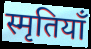
स्मृतियाँ